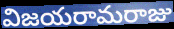
విజయరామరాజు